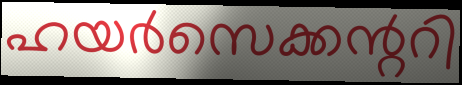
ഹയർസെക്കന്ററി